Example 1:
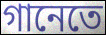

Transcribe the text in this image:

গানেতে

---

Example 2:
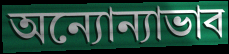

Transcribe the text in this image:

অন্যোন্যাভাব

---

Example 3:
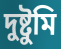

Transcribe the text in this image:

দুষ্টুমি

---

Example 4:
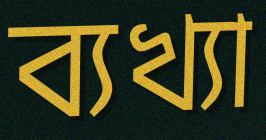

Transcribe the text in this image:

ব্যখ্যা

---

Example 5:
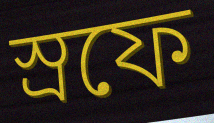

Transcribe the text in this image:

স্রফে